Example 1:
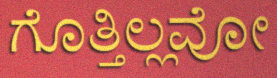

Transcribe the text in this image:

ಗೊತ್ತಿಲ್ಲವೋ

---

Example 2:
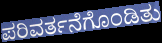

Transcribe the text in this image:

ಪರಿವರ್ತನೆಗೊಂಡಿತು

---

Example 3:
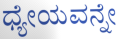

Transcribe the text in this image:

ಧ್ಯೇಯವನ್ನೇ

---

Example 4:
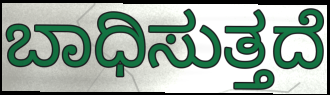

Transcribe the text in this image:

ಬಾಧಿಸುತ್ತದೆ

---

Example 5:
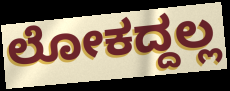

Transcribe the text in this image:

ಲೋಕದ್ದಲ್ಲ